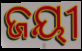
ଜୟୀ